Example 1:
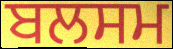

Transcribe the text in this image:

ਬਲਸਮ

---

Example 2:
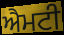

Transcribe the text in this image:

ਐਮਟੀ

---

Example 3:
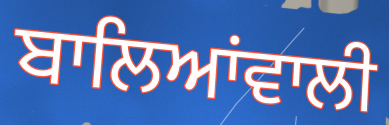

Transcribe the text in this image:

ਬਾਲਿਆਂਵਾਲੀ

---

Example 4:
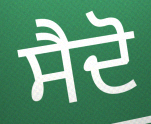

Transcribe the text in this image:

ਸੈਦੋ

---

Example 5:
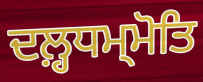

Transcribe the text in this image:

ਦਲ਼੍ਹਧਮ੍ਮੋਤਿ